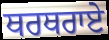
ਥਰਥਰਾਏ